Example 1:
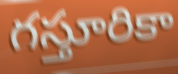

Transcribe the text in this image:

గస్తూరికా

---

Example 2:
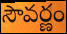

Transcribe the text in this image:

సౌవర్ణం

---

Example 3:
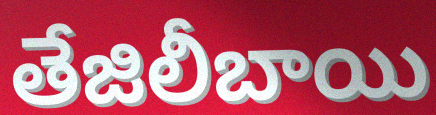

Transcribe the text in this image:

తేజిలీబాయి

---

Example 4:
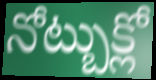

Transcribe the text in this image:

నోట్బుక్లో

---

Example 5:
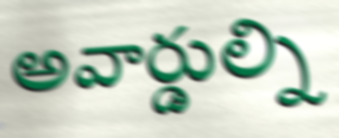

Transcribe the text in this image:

అవార్డుల్ని